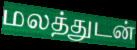
மலத்துடன்